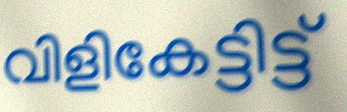
വിളികേട്ടിട്ട്